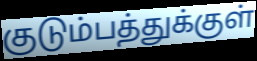
குடும்பத்துக்குள்